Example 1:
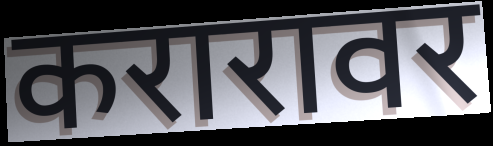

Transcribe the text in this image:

करारावर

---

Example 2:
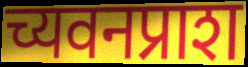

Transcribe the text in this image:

च्यवनप्राश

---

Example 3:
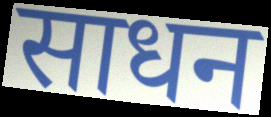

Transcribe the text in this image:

साधन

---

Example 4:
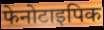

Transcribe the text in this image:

फेनोटाइपिक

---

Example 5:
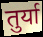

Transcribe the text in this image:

तुर्या